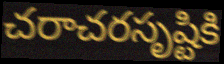
చరాచరసృష్టికి